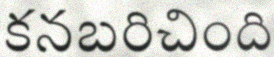
కనబరిచింది